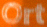
Ort